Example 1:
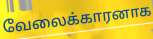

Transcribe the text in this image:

வேலைக்காரனாக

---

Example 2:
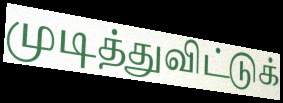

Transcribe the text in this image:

முடித்துவிட்டுக்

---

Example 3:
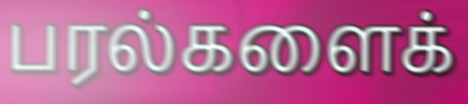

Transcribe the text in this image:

பரல்களைக்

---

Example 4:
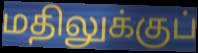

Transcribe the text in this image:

மதிலுக்குப்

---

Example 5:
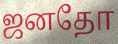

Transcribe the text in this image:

ஜனதோ